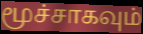
மூச்சாகவும்